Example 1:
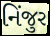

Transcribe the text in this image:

નિંજુર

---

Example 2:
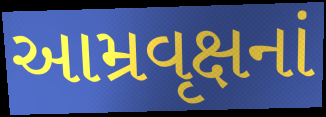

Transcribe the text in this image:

આમ્રવૃક્ષનાં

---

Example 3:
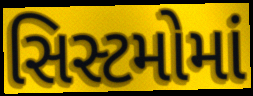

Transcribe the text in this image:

સિસ્ટમોમાં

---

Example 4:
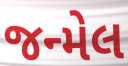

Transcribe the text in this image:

જન્મેલ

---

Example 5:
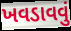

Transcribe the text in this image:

ખવડાવવું